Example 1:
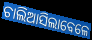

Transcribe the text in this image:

ଚାଲିଆସିଲାବେଳେ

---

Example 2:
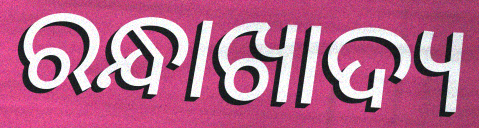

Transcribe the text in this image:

ରନ୍ଧାଖାଦ୍ୟ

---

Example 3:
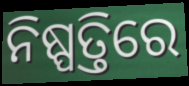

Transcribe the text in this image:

ନିଷ୍ପତ୍ତିରେ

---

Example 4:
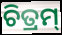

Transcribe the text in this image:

ଚିତ୍ରମ୍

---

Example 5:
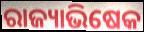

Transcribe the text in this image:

ରାଜ୍ୟାଭିଷେକ